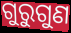
ଗୁରୁଗୁଣ